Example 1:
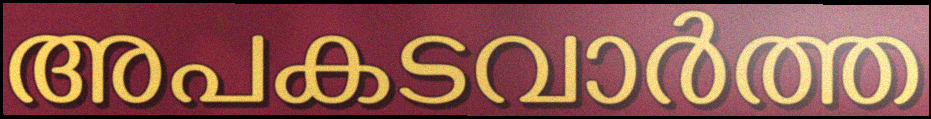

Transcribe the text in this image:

അപകടവാർത്ത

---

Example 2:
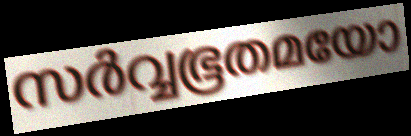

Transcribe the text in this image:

സർവ്വഭൂതമയോ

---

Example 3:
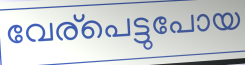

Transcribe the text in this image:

വേര്പെട്ടുപോയ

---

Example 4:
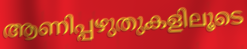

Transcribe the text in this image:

ആണിപ്പഴുതുകളിലൂടെ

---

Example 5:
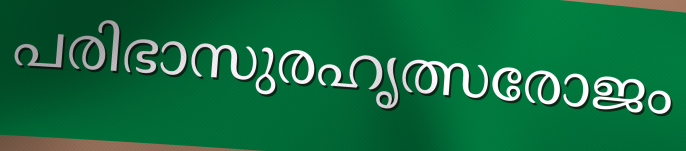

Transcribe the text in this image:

പരിഭാസുരഹൃത്സരോജം